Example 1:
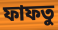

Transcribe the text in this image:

ফাফতু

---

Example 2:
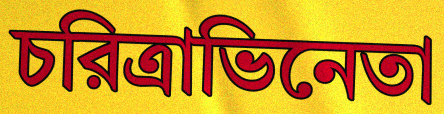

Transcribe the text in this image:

চরিত্রাভিনেতা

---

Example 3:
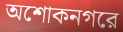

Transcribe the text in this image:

অশোকনগরে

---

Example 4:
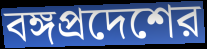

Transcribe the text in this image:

বঙ্গপ্রদেশের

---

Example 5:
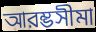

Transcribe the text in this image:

আরম্ভসীমা